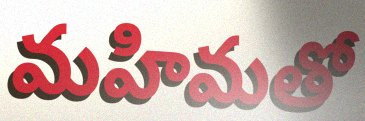
మహిమతో